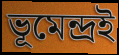
ভূমেন্দ্রই